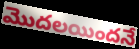
మొదలయిందనే